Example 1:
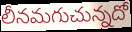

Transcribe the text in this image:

లీనమగుచున్నదో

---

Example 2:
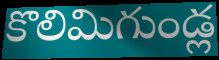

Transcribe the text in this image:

కొలిమిగుండ్ల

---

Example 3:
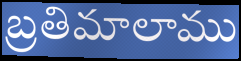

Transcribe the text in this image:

బ్రతిమాలాము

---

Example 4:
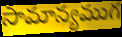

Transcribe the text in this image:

సామాన్యముగ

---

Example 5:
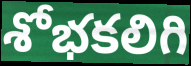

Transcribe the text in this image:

శోభకలిగి